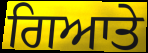
ਗਿਆਤੇ